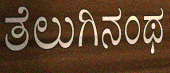
ತೆಲುಗಿನಂಥ